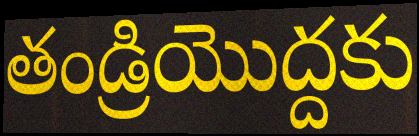
తండ్రియొద్దకు